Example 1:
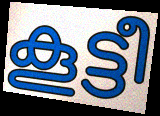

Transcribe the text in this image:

കൂട്ടീ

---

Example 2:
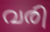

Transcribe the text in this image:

വരി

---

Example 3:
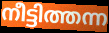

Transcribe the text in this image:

നീട്ടിത്തന്ന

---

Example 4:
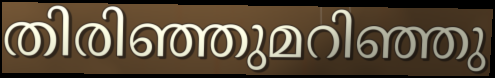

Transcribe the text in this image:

തിരിഞ്ഞുമറിഞ്ഞു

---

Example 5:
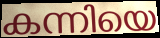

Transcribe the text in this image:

കന്നിയെ